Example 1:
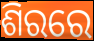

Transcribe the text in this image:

ଶିରରେ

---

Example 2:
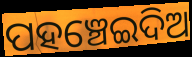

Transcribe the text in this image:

ପହଞ୍ଚେଇଦିଅ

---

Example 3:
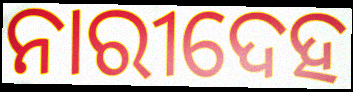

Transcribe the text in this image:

ନାରୀଦେହ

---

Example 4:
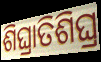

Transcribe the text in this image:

ଶିଘ୍ରାତିଶିଘ୍ର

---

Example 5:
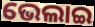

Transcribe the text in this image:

ଭେଲାଇ